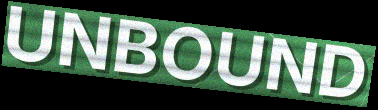
UNBOUND